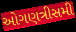
ઓગણત્રીસમી